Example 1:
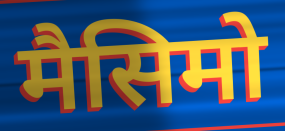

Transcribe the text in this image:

मैसिमो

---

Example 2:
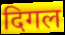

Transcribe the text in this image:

दिगल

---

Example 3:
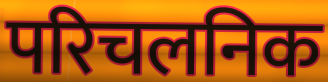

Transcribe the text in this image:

परिचलनिक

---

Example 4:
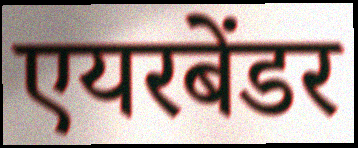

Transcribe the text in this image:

एयरबेंडर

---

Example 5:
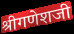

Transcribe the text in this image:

श्रीगणेशजी